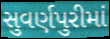
સુવર્ણપુરીમાં